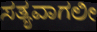
ಸತ್ಯವಾಗಲೀ